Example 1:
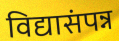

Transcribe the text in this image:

विद्यासंपन्न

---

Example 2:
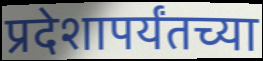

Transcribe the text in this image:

प्रदेशापर्यंतच्या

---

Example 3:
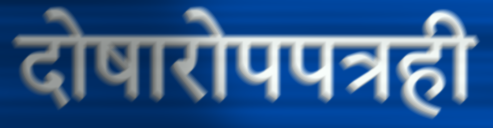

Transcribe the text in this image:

दोषारोपपत्रही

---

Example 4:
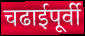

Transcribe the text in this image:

चढाईपूर्वी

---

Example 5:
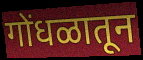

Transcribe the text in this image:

गोंधळातून